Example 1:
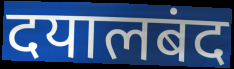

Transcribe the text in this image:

दयालबंद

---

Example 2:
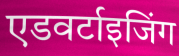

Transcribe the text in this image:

एडवर्टाइजिंग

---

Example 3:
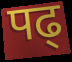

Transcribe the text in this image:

पढ्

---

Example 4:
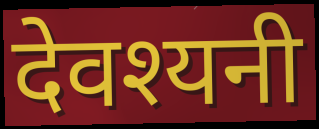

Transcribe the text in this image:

देवश्यनी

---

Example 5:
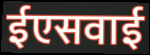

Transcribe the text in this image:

ईएसवाई